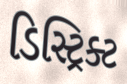
ડિસ્ટ્રિક્ટ